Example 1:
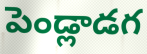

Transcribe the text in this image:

పెండ్లాడగ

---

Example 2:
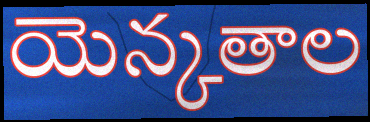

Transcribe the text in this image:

యెన్కతాల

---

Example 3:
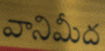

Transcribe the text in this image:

వానిమీద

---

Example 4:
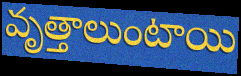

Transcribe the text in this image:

వృత్తాలుంటాయి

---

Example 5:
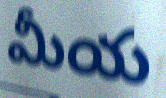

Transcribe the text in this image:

మీయ